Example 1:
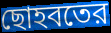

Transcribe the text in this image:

ছোহবতের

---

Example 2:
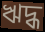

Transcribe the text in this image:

ঋদ্ধ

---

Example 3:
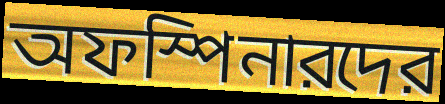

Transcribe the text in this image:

অফস্পিনারদের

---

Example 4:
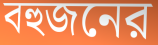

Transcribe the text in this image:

বহুজনের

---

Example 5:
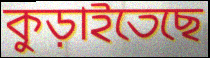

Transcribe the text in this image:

কুড়াইতেছে